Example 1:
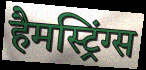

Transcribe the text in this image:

हैमस्ट्रिंग्स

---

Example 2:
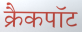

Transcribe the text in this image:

क्रैकपॉट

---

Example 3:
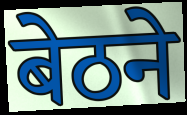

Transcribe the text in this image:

बेठने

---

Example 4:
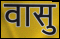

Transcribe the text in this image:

वासु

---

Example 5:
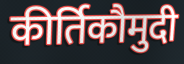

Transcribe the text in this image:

कीर्तिकौमुदी